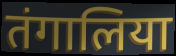
तंगालिया